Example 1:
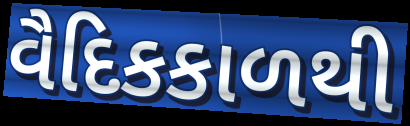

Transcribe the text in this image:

વૈદિકકાળથી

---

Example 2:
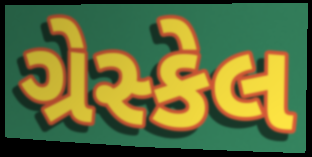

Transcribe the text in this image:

ગ્રેસ્કેલ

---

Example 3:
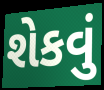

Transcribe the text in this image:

શેકવું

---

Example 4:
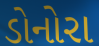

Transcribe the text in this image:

ડોનોરા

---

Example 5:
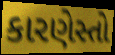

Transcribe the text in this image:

કારણેસ્તો